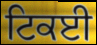
ਟਿਕਈ